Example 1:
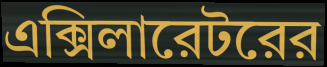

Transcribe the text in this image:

এক্সিলারেটরের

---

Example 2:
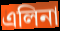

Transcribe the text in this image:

এলিনা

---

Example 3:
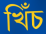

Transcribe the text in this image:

খিঁচ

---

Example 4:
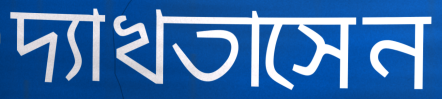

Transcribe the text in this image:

দ্যাখতাসেন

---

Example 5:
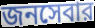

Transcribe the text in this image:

জনসেবার